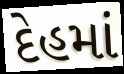
દેહમાં